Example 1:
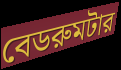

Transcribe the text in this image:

বেডরুমটার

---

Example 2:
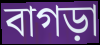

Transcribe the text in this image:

বাগড়া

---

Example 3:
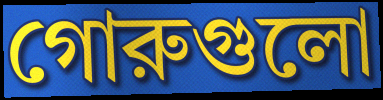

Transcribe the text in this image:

গোরুগুলো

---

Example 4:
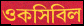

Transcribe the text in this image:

ওকসিবিল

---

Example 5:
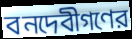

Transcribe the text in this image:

বনদেবীগণের